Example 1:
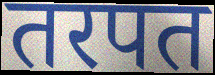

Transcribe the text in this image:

तरपत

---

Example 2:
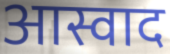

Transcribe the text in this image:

आस्वाद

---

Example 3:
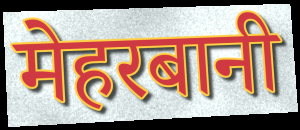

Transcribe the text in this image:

मेहरबानी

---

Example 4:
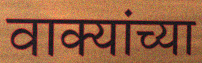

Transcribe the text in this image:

वाक्यांच्या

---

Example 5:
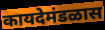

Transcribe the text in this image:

कायदेमंडळास